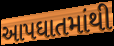
આપઘાતમાંથી